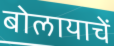
बोलायाचें